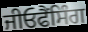
ਜੀਓਫੈਂਸਿੰਗ